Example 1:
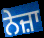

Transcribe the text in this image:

ਨੇਜ਼ਾ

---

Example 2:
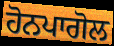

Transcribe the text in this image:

ਹੋਨਪਾਗੋਲ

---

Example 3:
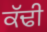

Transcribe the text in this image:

ਕੱਢੀ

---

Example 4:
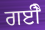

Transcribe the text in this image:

ਗਈੈ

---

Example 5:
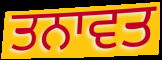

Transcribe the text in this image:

ਤਨਾਵਤ